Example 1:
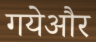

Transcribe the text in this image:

गयेऔर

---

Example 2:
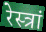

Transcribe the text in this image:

रेस्त्रां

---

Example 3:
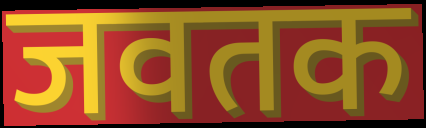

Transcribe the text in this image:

जवतक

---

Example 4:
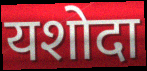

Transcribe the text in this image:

यशोदा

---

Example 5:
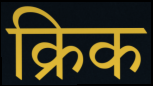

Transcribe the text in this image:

क्रिक